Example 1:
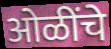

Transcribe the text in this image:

ओळींचे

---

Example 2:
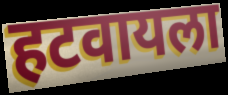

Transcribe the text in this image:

हटवायला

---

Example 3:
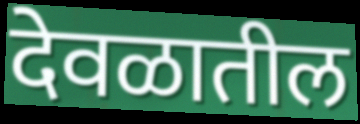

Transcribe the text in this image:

देवळातील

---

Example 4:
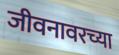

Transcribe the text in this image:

जीवनावरच्या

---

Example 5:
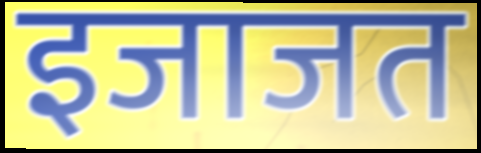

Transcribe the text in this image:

इजाजत